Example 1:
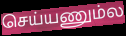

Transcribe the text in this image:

செய்யணும்ல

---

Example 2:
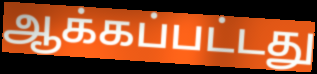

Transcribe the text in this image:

ஆக்கப்பட்டது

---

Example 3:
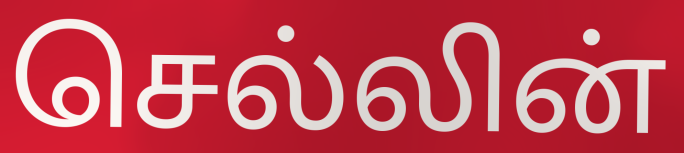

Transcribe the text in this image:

செல்லின்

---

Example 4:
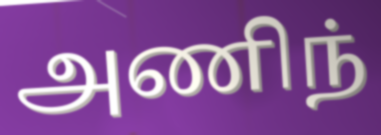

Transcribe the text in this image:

அணிந்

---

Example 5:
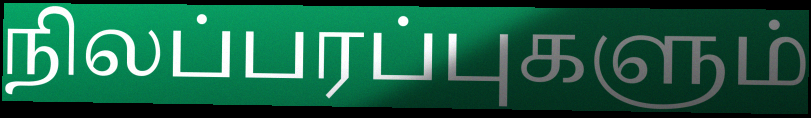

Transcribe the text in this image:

நிலப்பரப்புகளும்